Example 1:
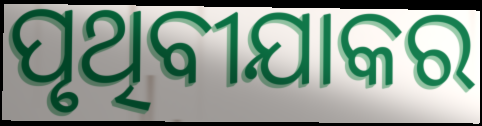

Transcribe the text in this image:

ପୃଥିବୀଯାକର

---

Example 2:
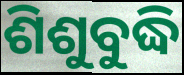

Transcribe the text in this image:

ଶିଶୁବୁଦ୍ଧି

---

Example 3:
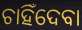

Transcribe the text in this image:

ଚାହିଁଦେବା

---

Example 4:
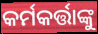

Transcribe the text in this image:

କର୍ମକର୍ତ୍ତାଙ୍କୁ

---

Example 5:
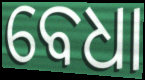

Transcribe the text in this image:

ବେଧା